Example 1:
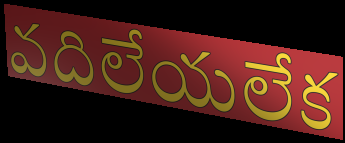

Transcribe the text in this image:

వదిలేయలేక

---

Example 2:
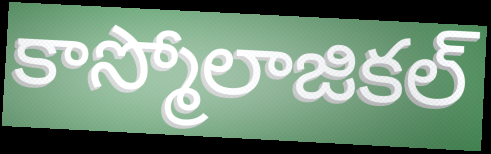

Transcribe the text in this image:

కాస్మోలాజికల్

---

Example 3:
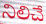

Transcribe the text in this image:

నిలిచే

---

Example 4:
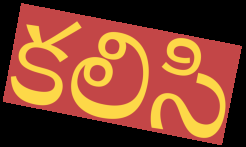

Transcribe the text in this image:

కలిసి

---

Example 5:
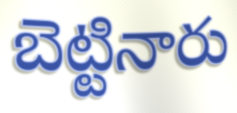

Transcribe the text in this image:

బెట్టినారు